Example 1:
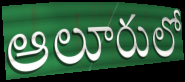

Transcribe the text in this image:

ఆలూరులో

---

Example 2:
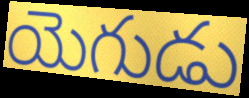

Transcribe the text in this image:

యెగుడు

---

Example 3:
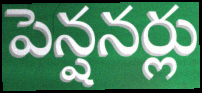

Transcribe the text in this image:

పెన్షనర్లు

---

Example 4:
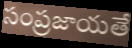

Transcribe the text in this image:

సంప్రజాయతే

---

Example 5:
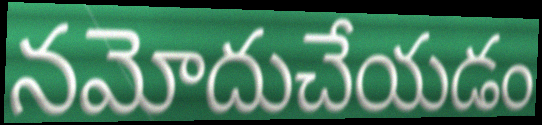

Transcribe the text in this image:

నమోదుచేయడం